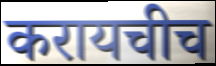
करायचीच